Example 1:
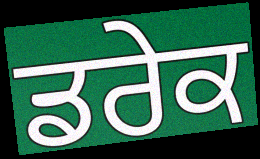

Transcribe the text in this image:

ਡਰੇਕ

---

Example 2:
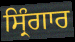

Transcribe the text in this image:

ਸ੍ਰਿੰਗਾਰ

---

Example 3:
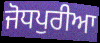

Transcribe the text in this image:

ਜੋਧਪੁਰੀਆ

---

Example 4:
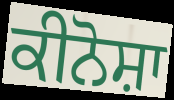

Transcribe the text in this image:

ਕੀਨੋਸ਼ਾ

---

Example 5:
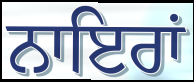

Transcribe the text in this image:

ਨਾਇਰਾਂ